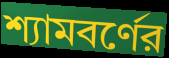
শ্যামবর্ণের